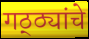
गठ्ठ्यांचे